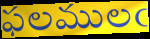
ఫలములఁ